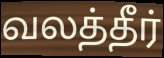
வலத்தீர்